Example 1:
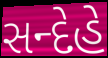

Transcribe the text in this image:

સન્દેહે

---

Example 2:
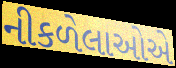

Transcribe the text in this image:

નીકળેલાઓએ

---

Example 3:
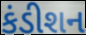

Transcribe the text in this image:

કંડીશન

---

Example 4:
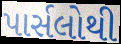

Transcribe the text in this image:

પાર્સલોથી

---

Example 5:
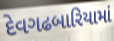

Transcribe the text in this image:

દેવગઢબારિયામાં